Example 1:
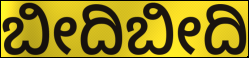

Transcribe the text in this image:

ಬೀದಿಬೀದಿ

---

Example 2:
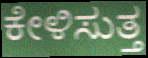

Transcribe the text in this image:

ಕೇಳಿಸುತ್ತ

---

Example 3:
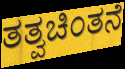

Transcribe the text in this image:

ತತ್ವಚಿಂತನೆ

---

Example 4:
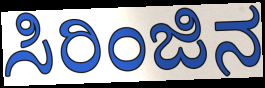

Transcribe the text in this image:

ಸಿರಿಂಜಿನ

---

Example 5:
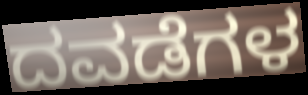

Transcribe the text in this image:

ದವಡೆಗಳ